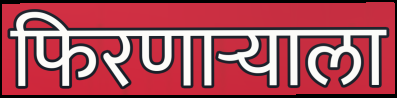
फिरणाऱ्याला